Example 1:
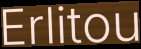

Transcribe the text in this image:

Erlitou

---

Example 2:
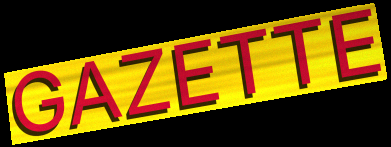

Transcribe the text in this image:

GAZETTE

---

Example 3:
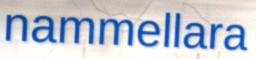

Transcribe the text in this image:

nammellara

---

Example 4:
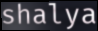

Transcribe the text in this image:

shalya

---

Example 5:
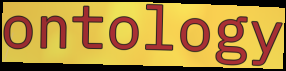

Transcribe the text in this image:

ontology